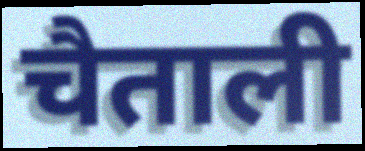
चैताली